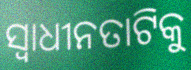
ସ୍ୱାଧୀନତାଟିକୁ